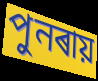
পুনৰায়